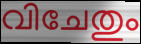
വിചേതും